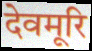
देवमूरि